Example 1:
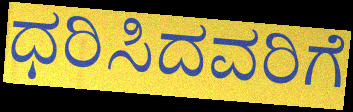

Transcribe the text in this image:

ಧರಿಸಿದವರಿಗೆ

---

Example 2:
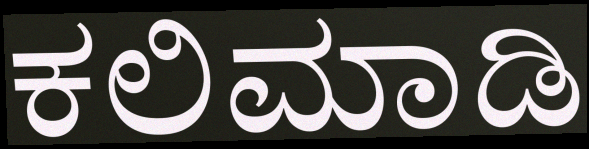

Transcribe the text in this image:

ಕಲಿಮಾಡಿ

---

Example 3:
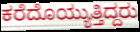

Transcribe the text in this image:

ಕರೆದೊಯ್ಯುತ್ತಿದ್ದರು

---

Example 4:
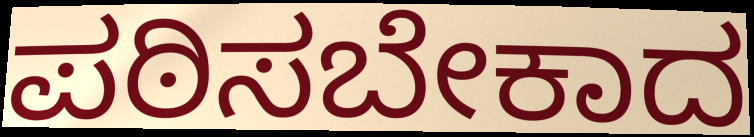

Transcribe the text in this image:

ಪಠಿಸಬೇಕಾದ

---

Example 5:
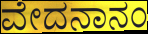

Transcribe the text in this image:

ವೇದನಾನಂ